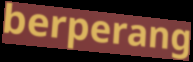
berperang